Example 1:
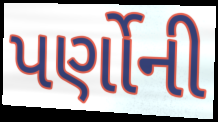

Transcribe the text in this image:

પર્ણોની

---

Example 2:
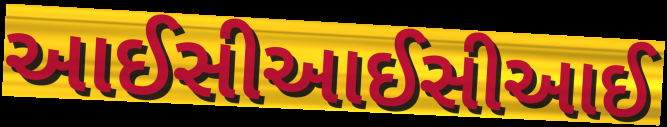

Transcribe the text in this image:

આઈસીઆઈસીઆઈ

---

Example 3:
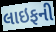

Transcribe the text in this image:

લાઇફની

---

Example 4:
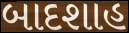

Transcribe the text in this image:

બાદશાહ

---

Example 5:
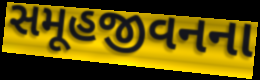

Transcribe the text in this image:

સમૂહજીવનના